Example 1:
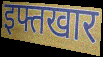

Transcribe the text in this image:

इफ्तखार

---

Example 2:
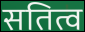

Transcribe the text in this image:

सतित्व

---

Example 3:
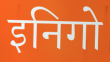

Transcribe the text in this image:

इनिगो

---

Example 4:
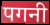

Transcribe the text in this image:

पगनी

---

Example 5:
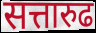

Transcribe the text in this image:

सत्तारुढ